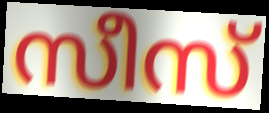
സീസ്